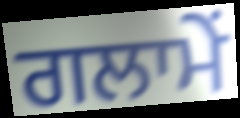
ਗਲਾਮੇਂ